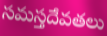
సమస్తదేవతలు